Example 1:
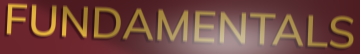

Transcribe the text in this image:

FUNDAMENTALS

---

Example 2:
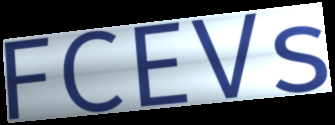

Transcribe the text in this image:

FCEVs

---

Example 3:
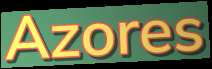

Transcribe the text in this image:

Azores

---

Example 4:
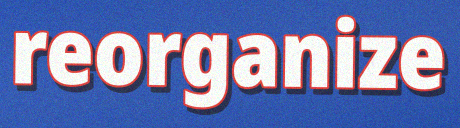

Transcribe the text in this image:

reorganize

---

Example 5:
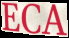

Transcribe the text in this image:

ECA